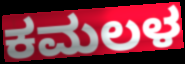
ಕಮಲಳ